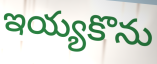
ఇయ్యకొను